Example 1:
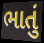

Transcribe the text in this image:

ભાતું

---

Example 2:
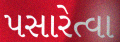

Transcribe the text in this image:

પસારેત્વા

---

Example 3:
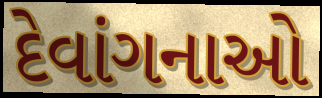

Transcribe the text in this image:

દેવાંગનાઓ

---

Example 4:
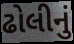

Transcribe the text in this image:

ઢોલીનું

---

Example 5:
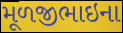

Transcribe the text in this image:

મૂળજીભાઇના